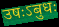
उषःऽबुधः